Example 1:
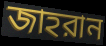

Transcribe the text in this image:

জাহরান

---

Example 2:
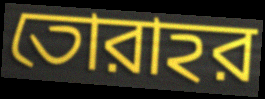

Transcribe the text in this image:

তোরাহর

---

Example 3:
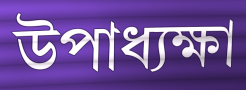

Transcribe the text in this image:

উপাধ্যক্ষা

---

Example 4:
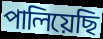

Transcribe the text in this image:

পালিয়েছি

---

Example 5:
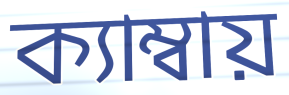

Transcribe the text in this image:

ক্যাম্বায়